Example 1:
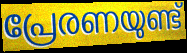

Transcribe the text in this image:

പ്രേരണയുണ്ട്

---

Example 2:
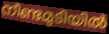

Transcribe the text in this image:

നീണ്ടമുടിയിൽ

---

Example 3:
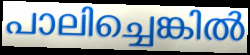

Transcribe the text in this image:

പാലിച്ചെങ്കിൽ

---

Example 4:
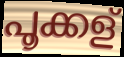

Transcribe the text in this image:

പൂക്കള്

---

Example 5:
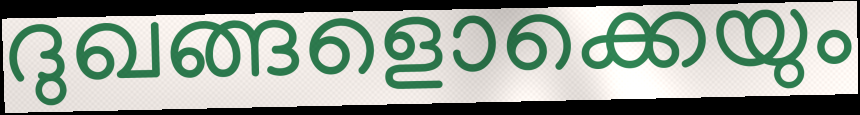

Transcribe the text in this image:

ദുഖങ്ങളൊക്കെയും